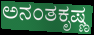
ಅನಂತಕೃಷ್ಣ